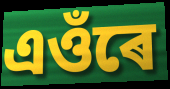
এওঁৰে